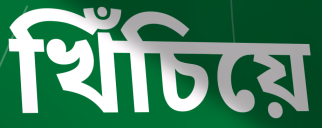
খিঁচিয়ে